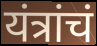
यंत्रांचं